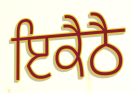
ਇਕੈਠੈ